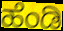
ಹೆಂಡಿ